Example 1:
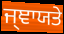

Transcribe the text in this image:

ਜ੍ਞਾਯਤੇ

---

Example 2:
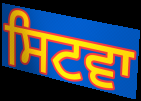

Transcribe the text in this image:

ਸਿਟਵਾ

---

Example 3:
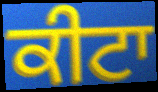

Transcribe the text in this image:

ਕੀਟਾ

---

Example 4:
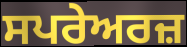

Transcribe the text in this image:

ਸਪਰੇਅਰਜ਼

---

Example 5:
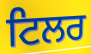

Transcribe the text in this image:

ਟਿਲਰ